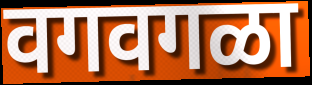
वगवगळा